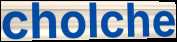
cholche